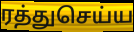
ரத்துசெய்ய